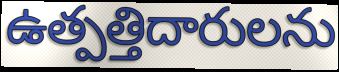
ఉత్పత్తిదారులను